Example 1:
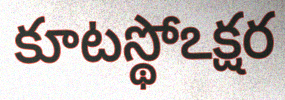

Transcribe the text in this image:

కూటస్థోఽక్షర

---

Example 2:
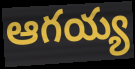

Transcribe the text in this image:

ఆగయ్య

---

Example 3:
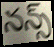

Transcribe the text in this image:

నన్స్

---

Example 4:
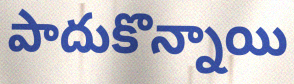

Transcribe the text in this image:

పాదుకొన్నాయి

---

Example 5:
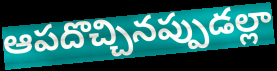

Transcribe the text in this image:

ఆపదొచ్చినప్పుడల్లా